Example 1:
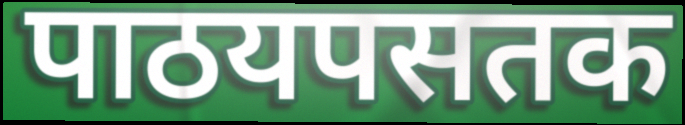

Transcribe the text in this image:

पाठयपसतक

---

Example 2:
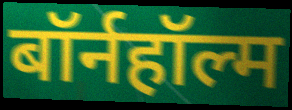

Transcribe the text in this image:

बॉर्नहॉल्म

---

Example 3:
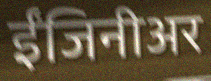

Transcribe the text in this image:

ईंजिनीअर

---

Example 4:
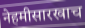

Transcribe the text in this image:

नेहमीसारखाच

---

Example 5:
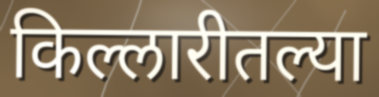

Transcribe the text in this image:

किल्लारीतल्या